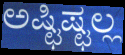
ಅಷ್ಟಿಷ್ಟಲ್ಲ